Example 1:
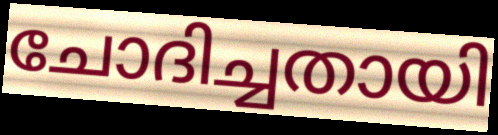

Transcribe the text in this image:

ചോദിച്ചതായി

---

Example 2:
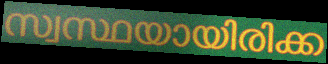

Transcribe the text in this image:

സ്വസ്ഥയായിരിക്ക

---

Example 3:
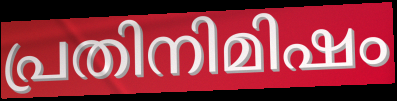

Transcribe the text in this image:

പ്രതിനിമിഷം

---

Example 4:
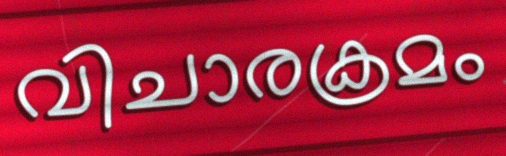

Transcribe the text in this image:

വിചാരക്രമം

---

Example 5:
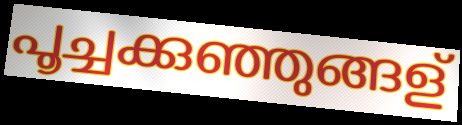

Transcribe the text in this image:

പൂച്ചക്കുഞ്ഞുങ്ങള്